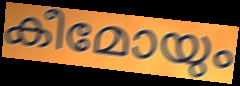
കീമോയും